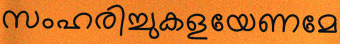
സംഹരിച്ചുകളയേണമേ